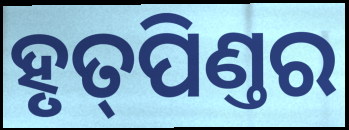
ହୃତ୍‌ପିଣ୍ତର